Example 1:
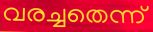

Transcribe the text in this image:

വരച്ചതെന്ന്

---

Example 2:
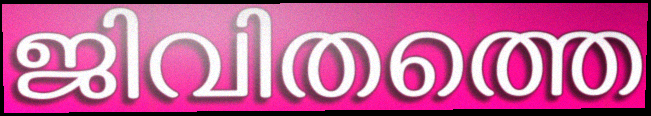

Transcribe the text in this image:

ജിവിതത്തെ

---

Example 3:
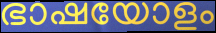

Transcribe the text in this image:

ഭാഷയോളം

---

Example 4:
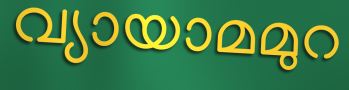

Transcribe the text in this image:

വ്യായാമമുറ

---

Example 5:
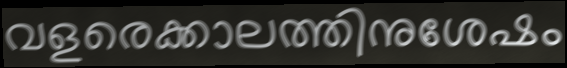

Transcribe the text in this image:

വളരെക്കാലത്തിനുശേഷം